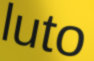
luto